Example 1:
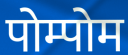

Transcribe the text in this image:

पोम्पोम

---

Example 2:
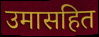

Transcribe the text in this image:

उमासहित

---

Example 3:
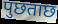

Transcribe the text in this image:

पुछताछ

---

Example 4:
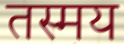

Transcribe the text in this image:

तस्मय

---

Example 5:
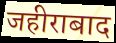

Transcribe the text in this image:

जहीराबाद